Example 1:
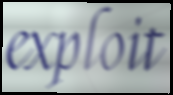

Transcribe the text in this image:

exploit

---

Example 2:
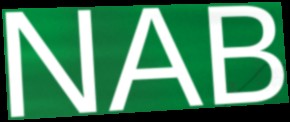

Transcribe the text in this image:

NAB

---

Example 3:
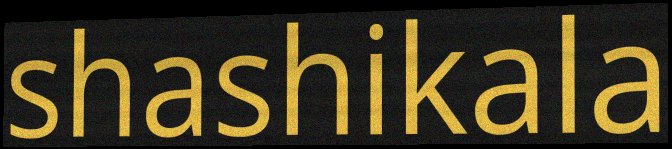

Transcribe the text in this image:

shashikala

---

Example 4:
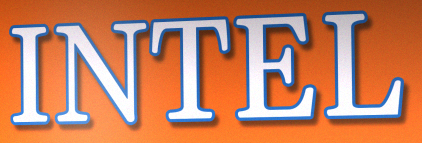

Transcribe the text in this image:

INTEL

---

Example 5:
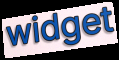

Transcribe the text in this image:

widget